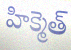
హిక్మెత్